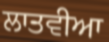
ਲਾਤਵੀਆ